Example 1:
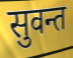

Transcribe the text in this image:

सुवन्त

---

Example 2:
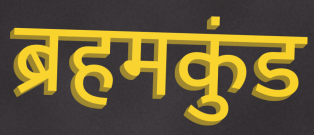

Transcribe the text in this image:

ब्रहमकुंड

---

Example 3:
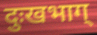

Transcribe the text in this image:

दुःखभाग्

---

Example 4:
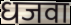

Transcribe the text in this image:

धजवा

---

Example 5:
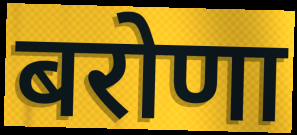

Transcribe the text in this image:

बरोणा